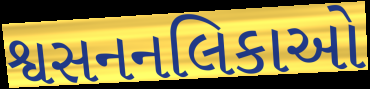
શ્વસનનલિકાઓ